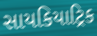
સાયકિયાટ્રિક